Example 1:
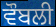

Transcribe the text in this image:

ਵੌਬਲੀ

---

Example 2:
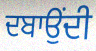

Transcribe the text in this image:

ਦਬਾਉਂਦੀ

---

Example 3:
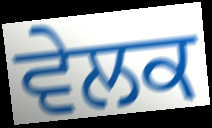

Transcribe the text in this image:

ਵੇਲਕ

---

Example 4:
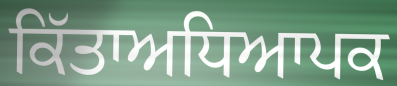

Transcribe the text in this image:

ਕਿੱਤਾਅਧਿਆਪਕ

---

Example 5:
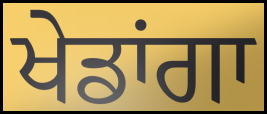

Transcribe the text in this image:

ਖੇਡਾਂਗਾ